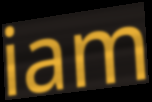
iam